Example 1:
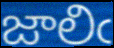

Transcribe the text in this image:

జాలిఁ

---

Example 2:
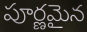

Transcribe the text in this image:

పూర్ణమైన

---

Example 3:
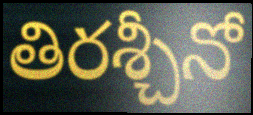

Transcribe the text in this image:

తిరశ్చీనో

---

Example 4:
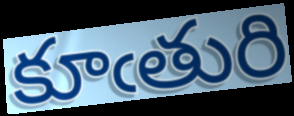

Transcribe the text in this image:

కూఁతురి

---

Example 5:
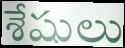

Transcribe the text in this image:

శేషులు